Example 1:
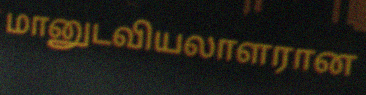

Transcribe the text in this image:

மானுடவியலாளரான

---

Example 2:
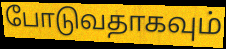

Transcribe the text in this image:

போடுவதாகவும்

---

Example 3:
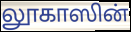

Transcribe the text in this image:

லூகாஸின்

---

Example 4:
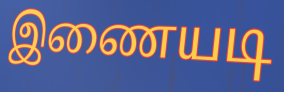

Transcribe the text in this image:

இணையடி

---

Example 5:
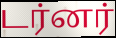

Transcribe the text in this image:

டர்னர்